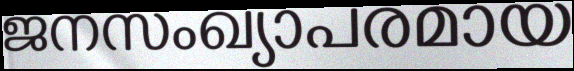
ജനസംഖ്യാപരമായ